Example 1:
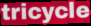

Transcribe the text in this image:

tricycle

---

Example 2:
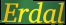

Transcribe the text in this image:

Erdal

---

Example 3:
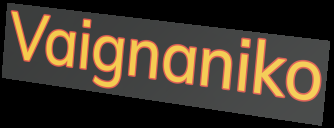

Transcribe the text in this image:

Vaignaniko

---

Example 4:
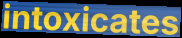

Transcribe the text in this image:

intoxicates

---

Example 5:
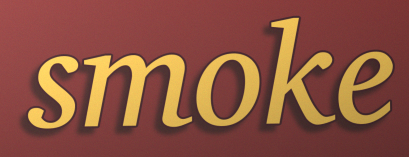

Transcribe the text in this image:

smoke